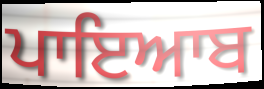
ਪਾਇਆਬ